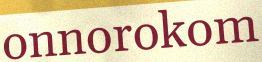
onnorokom